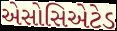
એસોસિએટેડ